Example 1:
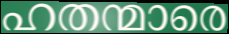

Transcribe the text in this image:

ഹതന്മാരെ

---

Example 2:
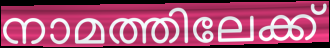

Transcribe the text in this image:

നാമത്തിലേക്ക്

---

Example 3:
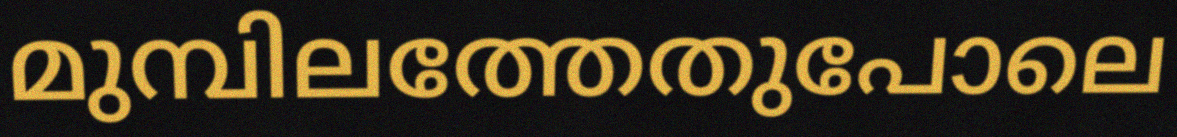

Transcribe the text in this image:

മുമ്പിലത്തേതുപോലെ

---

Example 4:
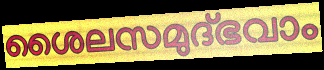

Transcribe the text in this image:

ശൈലസമുദ്ഭവാം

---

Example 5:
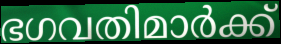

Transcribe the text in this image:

ഭഗവതിമാർക്ക്